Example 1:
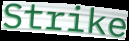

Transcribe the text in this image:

Strike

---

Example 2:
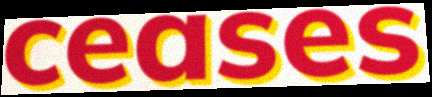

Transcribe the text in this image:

ceases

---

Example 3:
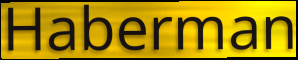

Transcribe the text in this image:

Haberman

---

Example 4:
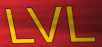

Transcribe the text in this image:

LVL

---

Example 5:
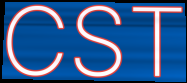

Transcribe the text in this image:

CST